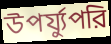
উপর্য্যুপরি